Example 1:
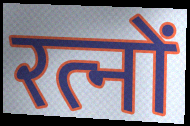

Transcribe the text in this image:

रत्‍नों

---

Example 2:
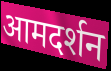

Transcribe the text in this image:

आमदर्शन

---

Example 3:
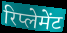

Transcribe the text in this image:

रिप्लेमेंट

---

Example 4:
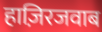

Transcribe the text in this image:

हाज़िरजवाब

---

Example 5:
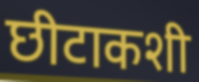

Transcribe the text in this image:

छीटाकशी